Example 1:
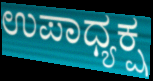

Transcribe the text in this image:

ಉಪಾಧ್ಯಕ್ಷ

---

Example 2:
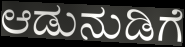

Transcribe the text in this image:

ಆಡುನುಡಿಗೆ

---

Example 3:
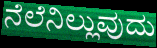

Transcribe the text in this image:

ನೆಲೆನಿಲ್ಲುವುದು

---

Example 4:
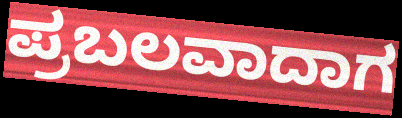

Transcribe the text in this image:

ಪ್ರಬಲವಾದಾಗ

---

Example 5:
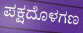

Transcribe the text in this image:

ಪಕ್ಷದೊಳಗಣ